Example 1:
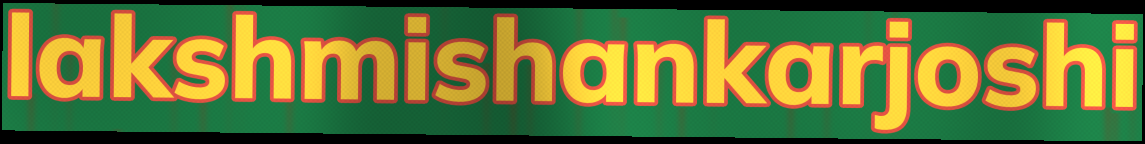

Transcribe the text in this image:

lakshmishankarjoshi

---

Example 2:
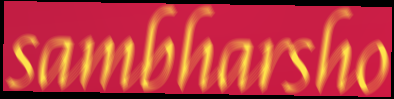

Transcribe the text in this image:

sambharsho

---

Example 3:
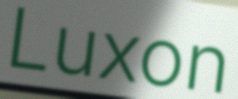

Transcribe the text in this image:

Luxon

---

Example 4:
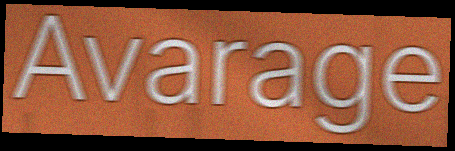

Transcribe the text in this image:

Avarage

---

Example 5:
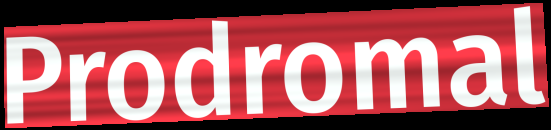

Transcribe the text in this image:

Prodromal